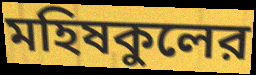
মহিষকুলের